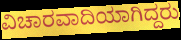
ವಿಚಾರವಾದಿಯಾಗಿದ್ದರು